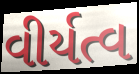
વીર્યત્વ